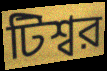
টিশ্বর